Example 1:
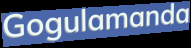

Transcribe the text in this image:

Gogulamanda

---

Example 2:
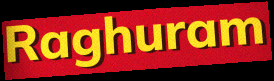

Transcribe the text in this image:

Raghuram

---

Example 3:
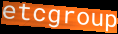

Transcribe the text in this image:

etcgroup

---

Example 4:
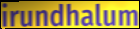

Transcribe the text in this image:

irundhalum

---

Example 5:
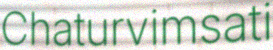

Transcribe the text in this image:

Chaturvimsati